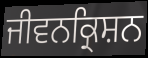
ਜੀਵਨਕ੍ਰਿਸ਼ਨ